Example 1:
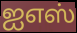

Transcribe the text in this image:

ஐஎஸ்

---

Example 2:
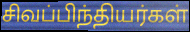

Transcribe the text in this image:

சிவப்பிந்தியர்கள்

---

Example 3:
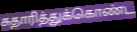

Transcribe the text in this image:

சுதாரித்துக்கொண்ட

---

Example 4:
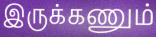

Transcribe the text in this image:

இருக்கணும்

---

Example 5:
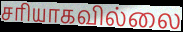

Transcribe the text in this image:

சரியாகவில்லை